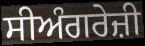
ਸੀਅੰਗਰੇਜ਼ੀ